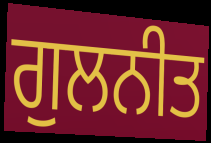
ਗੁਲਨੀਤ